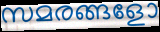
സമരങ്ങളോ